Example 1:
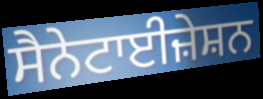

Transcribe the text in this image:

ਸੈਨੇਟਾਈਜ਼ੇਸ਼ਨ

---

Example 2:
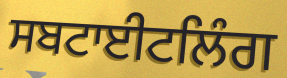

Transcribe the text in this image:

ਸਬਟਾਈਟਲਿੰਗ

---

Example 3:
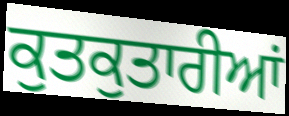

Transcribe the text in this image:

ਕੁਤਕੁਤਾਰੀਆਂ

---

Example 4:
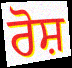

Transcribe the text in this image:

ਰੋਸ਼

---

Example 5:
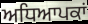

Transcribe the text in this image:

ਅਧਿਆਪਕਾਂ